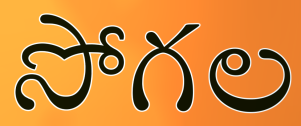
సోగల